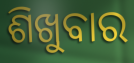
ଶିଖୁବାର